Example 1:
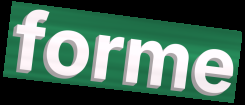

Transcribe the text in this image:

forme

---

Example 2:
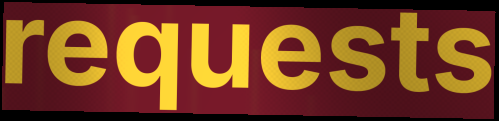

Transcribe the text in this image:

requests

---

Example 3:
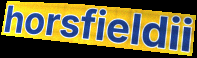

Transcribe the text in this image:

horsfieldii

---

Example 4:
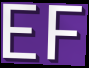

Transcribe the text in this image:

EF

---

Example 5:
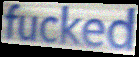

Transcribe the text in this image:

fucked